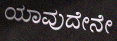
ಯಾವುದೇನೇ